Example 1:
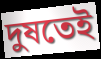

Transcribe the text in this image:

দুষতেই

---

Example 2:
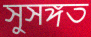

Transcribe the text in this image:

সুসঙ্গত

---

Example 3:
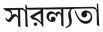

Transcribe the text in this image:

সারল্যতা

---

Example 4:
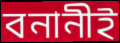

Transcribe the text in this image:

বনানীই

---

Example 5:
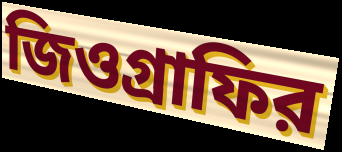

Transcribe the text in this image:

জিওগ্রাফির